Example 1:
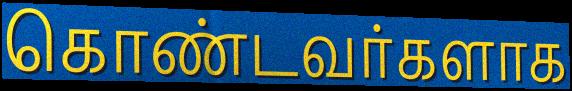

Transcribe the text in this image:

கொண்டவர்களாக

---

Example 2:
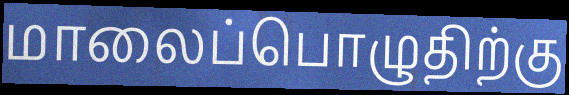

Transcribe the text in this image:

மாலைப்பொழுதிற்கு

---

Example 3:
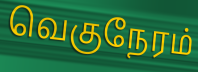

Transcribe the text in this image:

வெகுநேரம்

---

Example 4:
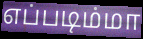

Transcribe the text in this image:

எப்படிம்மா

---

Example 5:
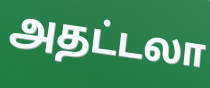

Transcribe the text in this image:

அதட்டலா